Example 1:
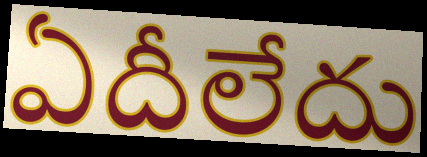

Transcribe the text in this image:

ఏదీలేదు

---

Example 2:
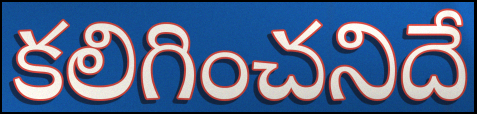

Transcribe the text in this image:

కలిగించనిదే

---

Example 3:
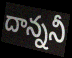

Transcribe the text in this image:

దాన్ననీ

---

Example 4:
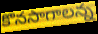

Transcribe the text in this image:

కొనసాగాలన్న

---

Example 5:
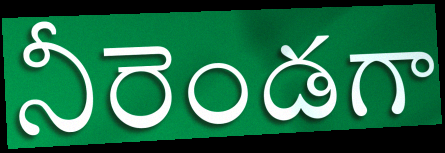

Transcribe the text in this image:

నీరెండగా